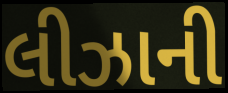
લીઝાની